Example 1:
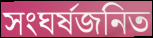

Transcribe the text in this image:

সংঘর্ষজনিত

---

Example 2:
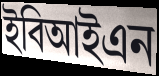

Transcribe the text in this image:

ইবিআইএন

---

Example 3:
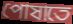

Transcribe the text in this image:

পোষাতে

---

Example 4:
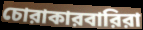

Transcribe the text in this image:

চোরাকারবারিরা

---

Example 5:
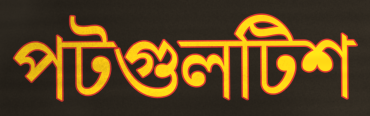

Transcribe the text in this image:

পটগুলটিশ